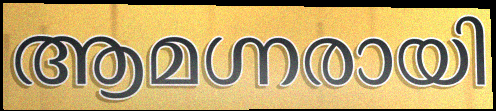
ആമഗ്നരായി